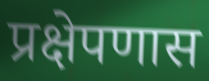
प्रक्षेपणास